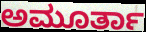
ಅಮೂರ್ತಾ